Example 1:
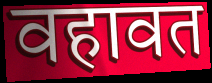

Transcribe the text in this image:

वहावत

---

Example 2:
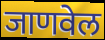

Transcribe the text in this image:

जाणवेल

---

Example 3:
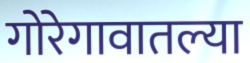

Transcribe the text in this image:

गोरेगावातल्या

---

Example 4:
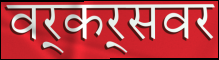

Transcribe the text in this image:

वर्कर्सवर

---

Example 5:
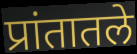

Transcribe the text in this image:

प्रांतातले